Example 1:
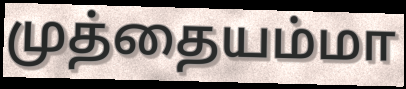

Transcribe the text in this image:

முத்தையம்மா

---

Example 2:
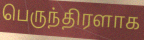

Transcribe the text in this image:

பெருந்திரளாக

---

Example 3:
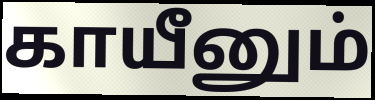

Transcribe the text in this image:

காயீனும்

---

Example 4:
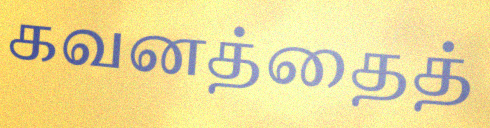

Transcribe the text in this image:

கவனத்தைத்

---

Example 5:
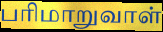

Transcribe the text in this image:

பரிமாறுவாள்